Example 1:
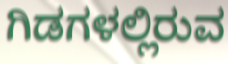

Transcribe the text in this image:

ಗಿಡಗಳಲ್ಲಿರುವ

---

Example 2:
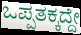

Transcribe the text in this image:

ಒಪ್ಪತಕ್ಕದ್ದೇ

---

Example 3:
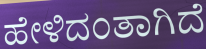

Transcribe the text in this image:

ಹೇಳಿದಂತಾಗಿದೆ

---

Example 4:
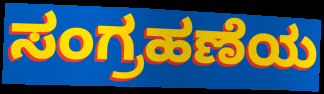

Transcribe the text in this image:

ಸಂಗ್ರಹಣೆಯ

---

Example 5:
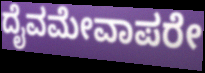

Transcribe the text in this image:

ದೈವಮೇವಾಪರೇ